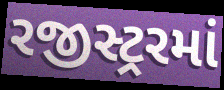
રજીસ્ટ્રરમાં